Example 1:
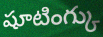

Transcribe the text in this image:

షూటింగ్కు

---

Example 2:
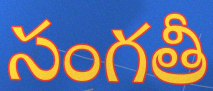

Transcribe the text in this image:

సంగతీ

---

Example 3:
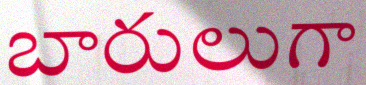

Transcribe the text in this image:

బారులుగా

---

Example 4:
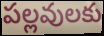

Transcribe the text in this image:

పల్లవులకు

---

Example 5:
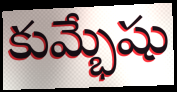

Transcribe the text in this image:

కుమ్భేషు